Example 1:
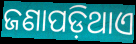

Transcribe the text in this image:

ଜଣାପଡ଼ିଥାଏ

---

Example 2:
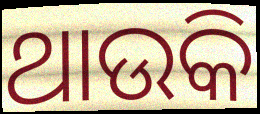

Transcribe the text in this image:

ଥାଉକି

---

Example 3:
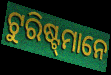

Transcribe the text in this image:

ଟୁରିଷ୍ଟ୍‍ମାନେ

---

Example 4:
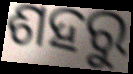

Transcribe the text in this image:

ଶହରୁ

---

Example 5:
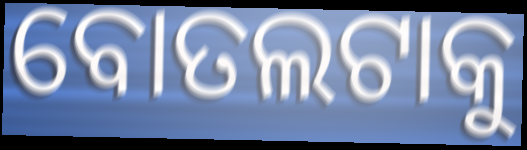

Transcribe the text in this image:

ବୋତଲଟାକୁ